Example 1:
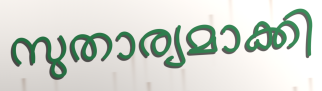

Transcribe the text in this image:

സുതാര്യമാക്കി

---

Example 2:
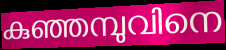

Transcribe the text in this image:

കുഞ്ഞമ്പുവിനെ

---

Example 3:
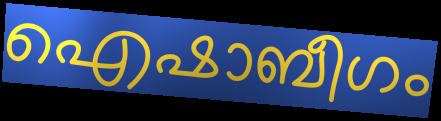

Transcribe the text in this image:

ഐഷാബീഗം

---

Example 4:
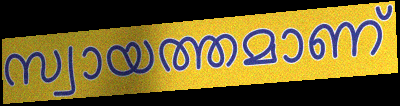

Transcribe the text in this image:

സ്വായത്തമാണ്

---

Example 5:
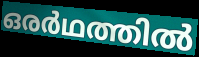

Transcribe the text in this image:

ഒരർഥത്തിൽ